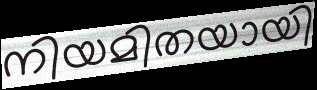
നിയമിതയായി